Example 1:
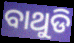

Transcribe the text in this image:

ବାଥୁଡି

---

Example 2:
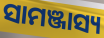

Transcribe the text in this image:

ସାମଞ୍ଜାସ୍ୟ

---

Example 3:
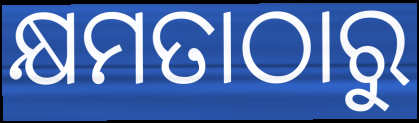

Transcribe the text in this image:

କ୍ଷମତାଠାରୁ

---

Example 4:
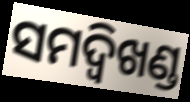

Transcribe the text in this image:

ସମଦ୍ବିଖଣ୍ଡ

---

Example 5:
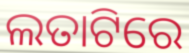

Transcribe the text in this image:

ଲତାଟିରେ